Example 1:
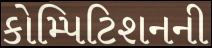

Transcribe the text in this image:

કોમ્પિટિશનની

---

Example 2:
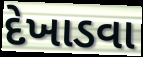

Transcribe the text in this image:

દેખાડવા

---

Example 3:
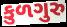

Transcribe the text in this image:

કુળગુરુ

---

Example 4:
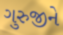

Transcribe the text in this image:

ગુરુજીને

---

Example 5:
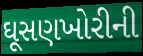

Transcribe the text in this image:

ઘૂસણખોરીની